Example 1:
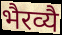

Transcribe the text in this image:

भैरव्यै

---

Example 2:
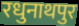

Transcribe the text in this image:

रधुनाथपुर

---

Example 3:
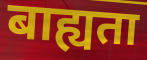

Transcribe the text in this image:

बाह्यता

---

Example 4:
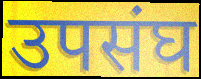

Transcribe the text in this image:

उपसंघ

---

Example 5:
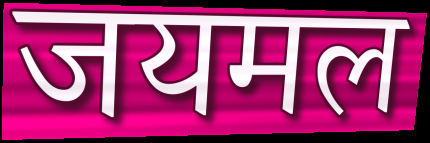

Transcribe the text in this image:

जयमल